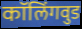
कॉलिंगवुड